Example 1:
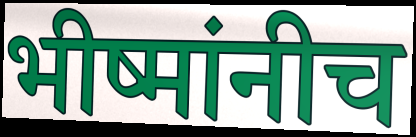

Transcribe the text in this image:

भीष्मांनीच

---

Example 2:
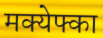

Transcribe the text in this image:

मक्येफ्का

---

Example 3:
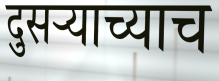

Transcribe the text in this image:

दुसऱ्याच्याच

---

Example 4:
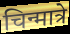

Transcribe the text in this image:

चिन्मात्रे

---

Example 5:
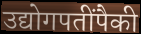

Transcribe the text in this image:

उद्योगपतींपैकी